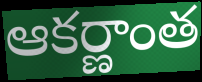
ఆకర్ణాంత